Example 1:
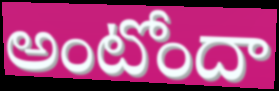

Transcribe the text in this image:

అంటోందా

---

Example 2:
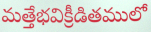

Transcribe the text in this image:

మత్తేభవిక్రీడితములో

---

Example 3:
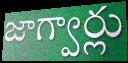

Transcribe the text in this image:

జాగ్వార్లు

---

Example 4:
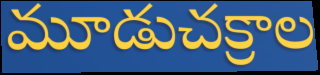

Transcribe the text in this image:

మూడుచక్రాల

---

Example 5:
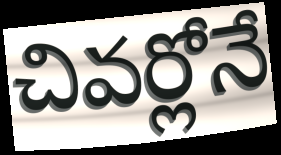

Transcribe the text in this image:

చివర్లోనే